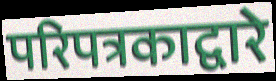
परिपत्रकाद्वारे